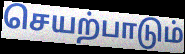
செயற்பாடும்